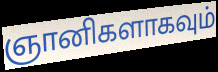
ஞானிகளாகவும்